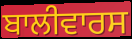
ਬਾਲੀਵਾਰਸ